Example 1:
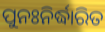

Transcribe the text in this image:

ପୁନଃନିର୍ଦ୍ଧାରିତ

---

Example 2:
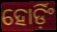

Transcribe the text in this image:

ହୋର୍ଡ଼ିଂ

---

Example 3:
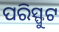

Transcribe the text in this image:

ପରିସ୍ଫୁଟ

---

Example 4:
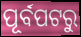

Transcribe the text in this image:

ପୂର୍ବପଟରୁ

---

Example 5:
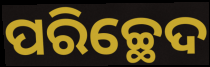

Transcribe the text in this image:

ପରିଚ୍ଛେଦ